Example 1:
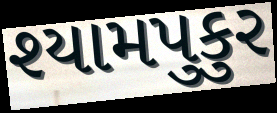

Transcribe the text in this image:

શ્યામપુકુર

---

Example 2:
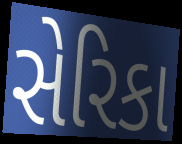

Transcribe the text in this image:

સેરિકા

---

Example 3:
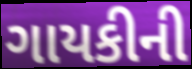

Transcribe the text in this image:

ગાયકીની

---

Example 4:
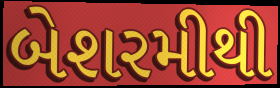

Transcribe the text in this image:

બેશરમીથી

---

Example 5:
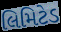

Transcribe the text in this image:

લિમિટેડ